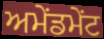
ਅਮੇਂਡਮੇਂਟ